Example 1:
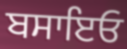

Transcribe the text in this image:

ਬਸਾਇਓ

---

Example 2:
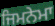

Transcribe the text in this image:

ਜਿਮਨੇਮਾ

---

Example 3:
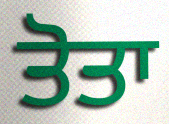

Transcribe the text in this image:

ਤੋਤਾ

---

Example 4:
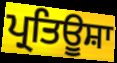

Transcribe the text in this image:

ਪ੍ਰਤਿਊਸ਼ਾ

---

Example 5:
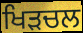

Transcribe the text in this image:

ਖਿੜਚਲ